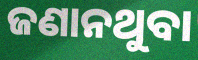
ଜଣାନଥୁବା